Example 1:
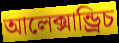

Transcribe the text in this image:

আলেক্সান্ড্রিচ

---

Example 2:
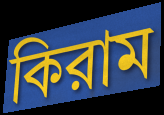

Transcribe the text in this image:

কিরাম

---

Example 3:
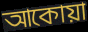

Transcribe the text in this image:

আকোয়া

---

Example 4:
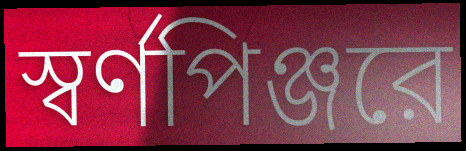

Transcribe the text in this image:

স্বর্ণপিঞ্জরে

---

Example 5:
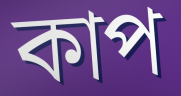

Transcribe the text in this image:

কাপ